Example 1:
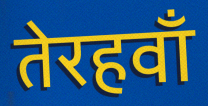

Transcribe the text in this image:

तेरहवाँ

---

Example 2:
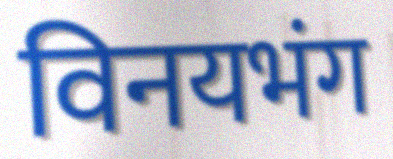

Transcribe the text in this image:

विनयभंग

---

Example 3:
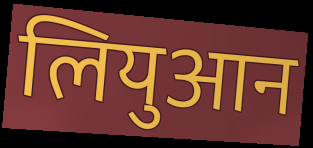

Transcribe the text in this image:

लियुआन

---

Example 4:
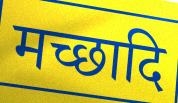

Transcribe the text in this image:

मच्छादि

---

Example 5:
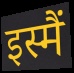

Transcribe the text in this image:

इस्मैं